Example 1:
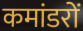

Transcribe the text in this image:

कमांडरों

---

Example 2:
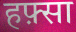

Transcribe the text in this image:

हफ़्सा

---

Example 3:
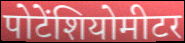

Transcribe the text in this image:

पोटेंशियोमीटर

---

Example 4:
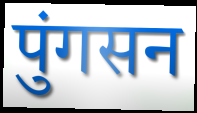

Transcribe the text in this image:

पुंगसन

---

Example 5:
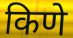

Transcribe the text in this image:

किणे